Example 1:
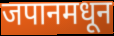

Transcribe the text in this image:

जपानमधून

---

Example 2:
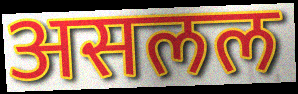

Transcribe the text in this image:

असलल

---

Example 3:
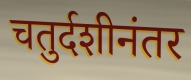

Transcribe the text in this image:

चतुर्दशीनंतर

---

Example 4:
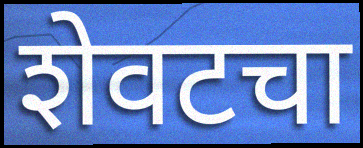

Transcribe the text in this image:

शेवटचा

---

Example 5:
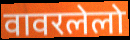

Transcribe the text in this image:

वावरलेलो